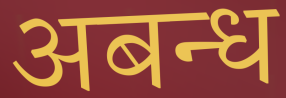
अबन्ध